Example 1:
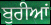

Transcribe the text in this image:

ਬੁਰੀਆਂ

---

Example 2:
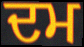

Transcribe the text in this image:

ਦਮ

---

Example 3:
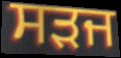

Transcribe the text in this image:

ਸੜਜ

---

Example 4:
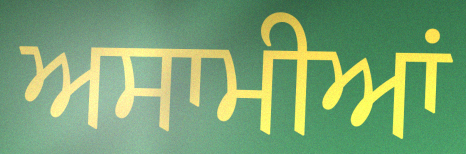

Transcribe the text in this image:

ਅਸਾਮੀਆਂ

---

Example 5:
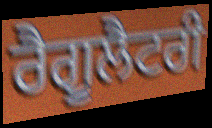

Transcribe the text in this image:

ਰੈਗੂਲੈਟਰੀ